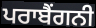
ਪਰਾਬੈਂਗਨੀ